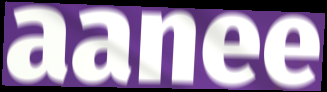
aanee